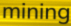
mining